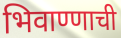
भिवाण्णाची